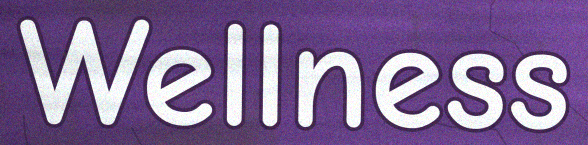
Wellness